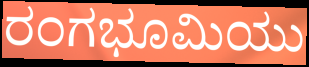
ರಂಗಭೂಮಿಯು